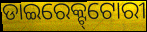
ଡାଇରେକ୍ଟ୍‌ଟୋରୀ